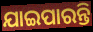
ଯାଇପାରନ୍ତି